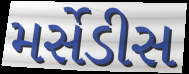
મર્સેડીસ